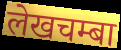
लेखचम्बा